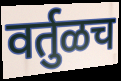
वर्तुळच